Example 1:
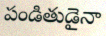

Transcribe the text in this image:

పండితుడైనా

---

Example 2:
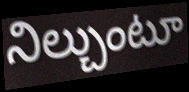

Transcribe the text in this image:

నిల్చుంటూ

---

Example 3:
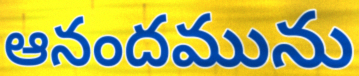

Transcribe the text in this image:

ఆనందమును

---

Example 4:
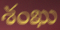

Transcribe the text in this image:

శంఖు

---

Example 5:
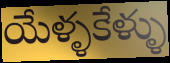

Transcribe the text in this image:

యేళ్ళకేళ్ళు